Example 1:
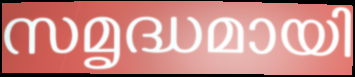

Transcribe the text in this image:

സമൃദ്ധമായി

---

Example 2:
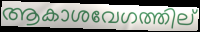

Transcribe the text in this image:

ആകാശവേഗത്തില്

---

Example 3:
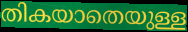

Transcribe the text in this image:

തികയാതെയുള്ള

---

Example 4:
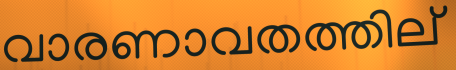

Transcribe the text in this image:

വാരണാവതത്തില്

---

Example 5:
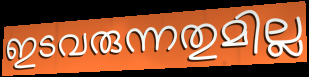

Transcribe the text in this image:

ഇടവരുന്നതുമില്ല